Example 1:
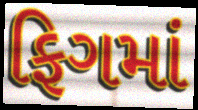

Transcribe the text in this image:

ફિગમાં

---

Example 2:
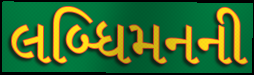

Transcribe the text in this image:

લબ્ધિમનની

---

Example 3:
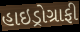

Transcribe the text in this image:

હાઇડ્રોગ્રાફી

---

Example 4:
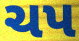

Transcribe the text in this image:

ચપ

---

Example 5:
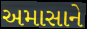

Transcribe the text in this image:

અમાસાને